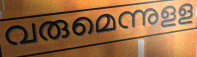
വരുമെന്നുളള